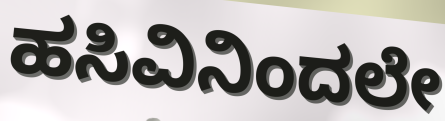
ಹಸಿವಿನಿಂದಲೇ